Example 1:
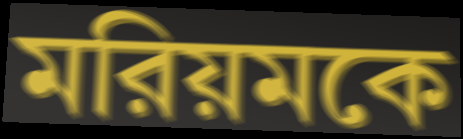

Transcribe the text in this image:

মরিয়মকে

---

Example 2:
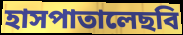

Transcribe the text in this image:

হাসপাতালেছবি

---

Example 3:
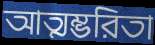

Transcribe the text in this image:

আত্মম্ভরিতা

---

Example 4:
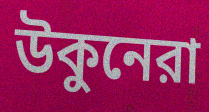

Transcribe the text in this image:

উকুনেরা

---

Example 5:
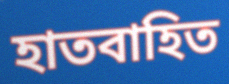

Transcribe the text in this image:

হাতবাহিত